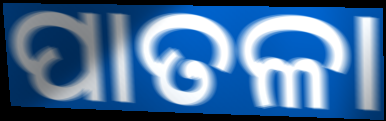
ପାତଳା